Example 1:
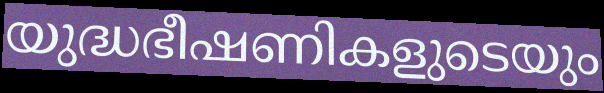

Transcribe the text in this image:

യുദ്ധഭീഷണികളുടെയും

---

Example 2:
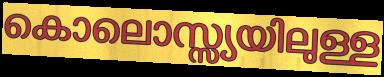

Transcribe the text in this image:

കൊലൊസ്സ്യയിലുള്ള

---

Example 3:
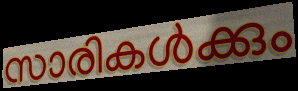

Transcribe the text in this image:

സാരികൾക്കും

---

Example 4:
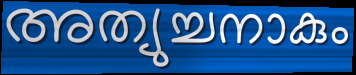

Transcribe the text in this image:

അത്യുച്ചനാകും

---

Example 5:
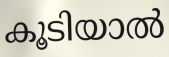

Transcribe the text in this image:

കൂടിയാൽ